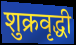
शुक्रवृद्धी